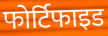
फोर्टिफाइड